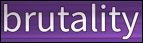
brutality